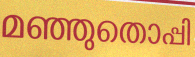
മഞ്ഞുതൊപ്പി